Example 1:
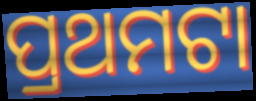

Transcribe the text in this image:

ପ୍ରଥମଟା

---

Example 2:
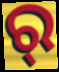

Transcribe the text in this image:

ର୍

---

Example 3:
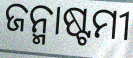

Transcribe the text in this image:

ଜନ୍ମାଷ୍ଟମୀ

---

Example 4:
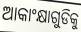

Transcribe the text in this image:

ଆକାଂକ୍ଷାଗୁଡିକୁ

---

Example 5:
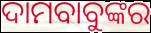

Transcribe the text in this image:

ଦାମବାବୁଙ୍କର